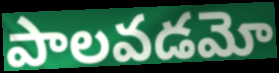
పాలవడమో